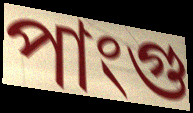
পাংগু